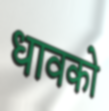
धावको